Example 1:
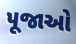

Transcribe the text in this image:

પૂજાઓ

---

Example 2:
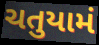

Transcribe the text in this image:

ચતુયામં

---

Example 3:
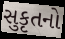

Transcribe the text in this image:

સુકૃતનો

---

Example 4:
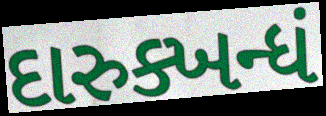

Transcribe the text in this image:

દારુક્ખન્ધં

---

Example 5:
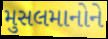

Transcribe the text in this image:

મુસલમાનોને